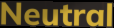
Neutral